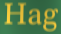
Hag